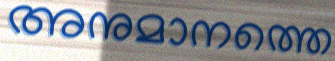
അനുമാനത്തെ